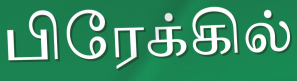
பிரேக்கில்